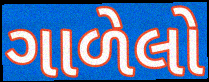
ગાળેલો